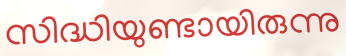
സിദ്ധിയുണ്ടായിരുന്നു